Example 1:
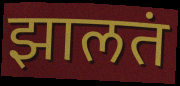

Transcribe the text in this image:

झालतं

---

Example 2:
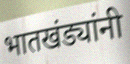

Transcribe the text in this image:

भातखंड्यांनी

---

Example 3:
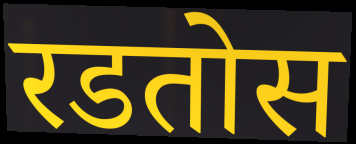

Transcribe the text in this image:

रडतोस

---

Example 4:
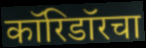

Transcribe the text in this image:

कॉरिडॉरचा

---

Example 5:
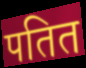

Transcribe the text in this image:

पतित